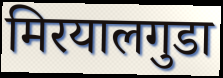
मिरयालगुडा